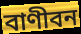
বাণীবন